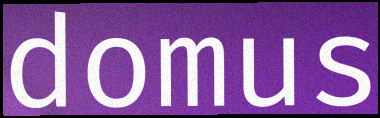
domus